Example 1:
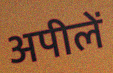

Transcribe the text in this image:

अपीलें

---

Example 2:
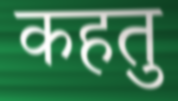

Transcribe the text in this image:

कहतु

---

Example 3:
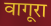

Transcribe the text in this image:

वागूरा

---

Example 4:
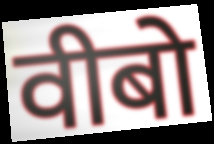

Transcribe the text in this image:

वीबो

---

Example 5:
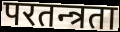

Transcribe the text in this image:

परतन्त्रता